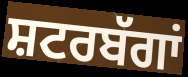
ਸ਼ਟਰਬੱਗਾਂ